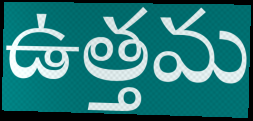
ఉత్తమ